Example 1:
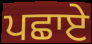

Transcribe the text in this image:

ਪਛਾਏ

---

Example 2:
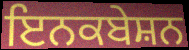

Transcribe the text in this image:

ਇਨਕਬੇਸ਼ਨ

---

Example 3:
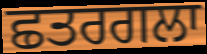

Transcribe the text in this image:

ਛਤਰਗਲਾ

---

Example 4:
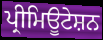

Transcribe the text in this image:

ਪ੍ਰੀਮਿਊਟੇਸ਼ਨ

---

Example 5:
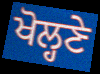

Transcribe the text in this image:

ਖੋਲ੍ਹਣੇ